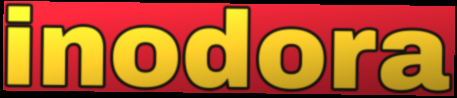
inodora